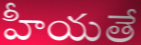
హీయతే